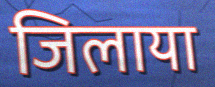
जिलाया